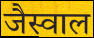
जैस्वाल